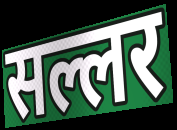
सल्लर